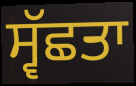
ਸ੍ਵੱਛਤਾ